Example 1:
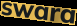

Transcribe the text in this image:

swara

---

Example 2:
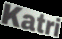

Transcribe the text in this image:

Katri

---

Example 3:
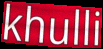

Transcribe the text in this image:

khulli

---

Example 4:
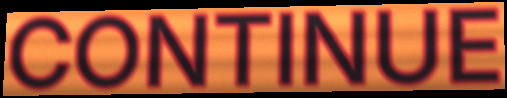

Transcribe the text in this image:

CONTINUE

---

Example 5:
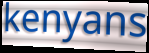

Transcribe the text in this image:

kenyans